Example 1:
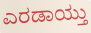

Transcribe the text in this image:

ಎರಡಾಯ್ತು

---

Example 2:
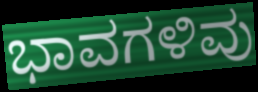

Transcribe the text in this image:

ಭಾವಗಳಿವು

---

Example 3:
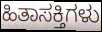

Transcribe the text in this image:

ಹಿತಾಸಕ್ತಿಗಳು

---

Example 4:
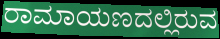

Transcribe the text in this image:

ರಾಮಾಯಣದಲ್ಲಿರುವ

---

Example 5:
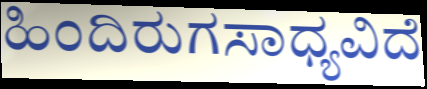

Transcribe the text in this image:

ಹಿಂದಿರುಗಸಾಧ್ಯವಿದೆ